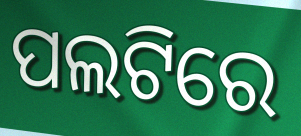
ପଲଟିରେ